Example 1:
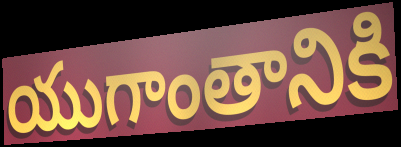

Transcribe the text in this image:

యుగాంతానికి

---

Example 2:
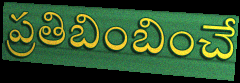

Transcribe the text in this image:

ప్రతిబింబించే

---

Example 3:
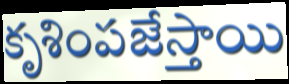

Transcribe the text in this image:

కృశింపజేస్తాయి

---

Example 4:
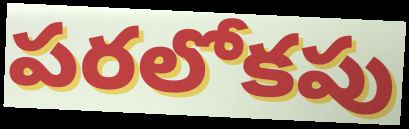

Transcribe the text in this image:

పరలోకపు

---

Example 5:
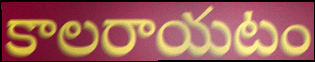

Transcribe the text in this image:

కాలరాయటం